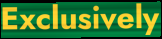
Exclusively